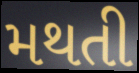
મથતી